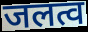
जलत्व